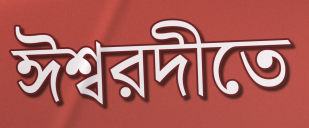
ঈশ্বরদীতে